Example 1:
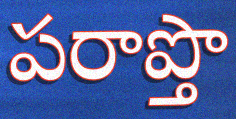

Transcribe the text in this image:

పరాప్తొ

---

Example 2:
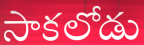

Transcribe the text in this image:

సాకలోడు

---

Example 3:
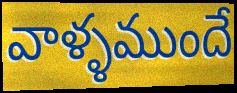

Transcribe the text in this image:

వాళ్ళముందే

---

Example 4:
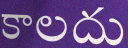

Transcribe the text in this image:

కాలదు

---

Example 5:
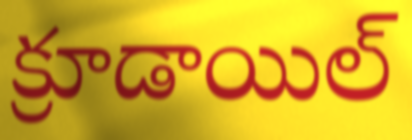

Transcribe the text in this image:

క్రూడాయిల్